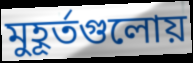
মুহূর্তগুলোয়